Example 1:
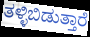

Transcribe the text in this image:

ತಳ್ಳಿಬಿಡುತ್ತಾರೆ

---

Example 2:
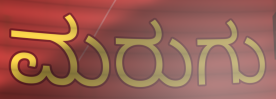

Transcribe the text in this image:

ಮರುಗು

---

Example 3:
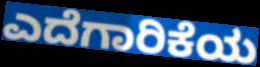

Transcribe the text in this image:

ಎದೆಗಾರಿಕೆಯ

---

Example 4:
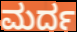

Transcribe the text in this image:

ಮರ್ದ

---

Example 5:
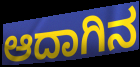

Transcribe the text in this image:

ಆದಾಗಿನ